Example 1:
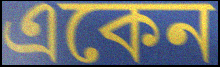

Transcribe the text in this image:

একেন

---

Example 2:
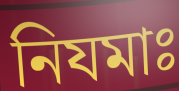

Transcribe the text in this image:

নিযমাঃ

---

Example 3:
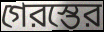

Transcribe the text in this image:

গেরস্তের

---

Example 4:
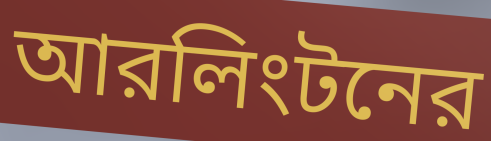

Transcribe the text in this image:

আরলিংটনের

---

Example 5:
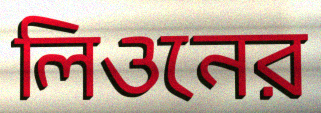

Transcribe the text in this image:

লিওনের